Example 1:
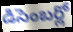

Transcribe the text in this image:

డిసెంబర్లో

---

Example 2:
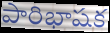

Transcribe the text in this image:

పారిభాషక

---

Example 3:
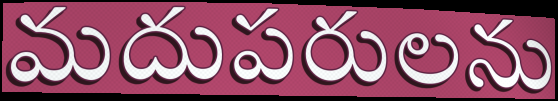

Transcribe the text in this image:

మదుపరులను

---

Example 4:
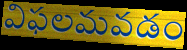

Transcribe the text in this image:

విఫలమవడం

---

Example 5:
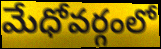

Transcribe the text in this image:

మేధోవర్గంలో